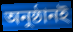
অনুষ্ঠানই